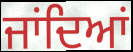
ਜਾਂਦਿਆਂ